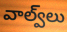
వాల్వ్‌లు